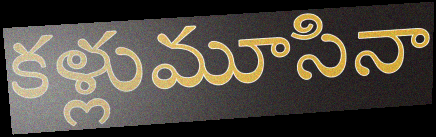
కళ్లుమూసినా